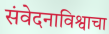
संवेदनाविश्वाचा